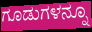
ಗೂಡುಗಳನ್ನೂ